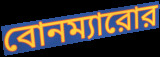
বোনম্যারোর